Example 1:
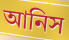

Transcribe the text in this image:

আনিস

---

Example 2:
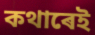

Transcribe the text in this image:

কথাৰেই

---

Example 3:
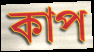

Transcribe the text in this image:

কাপ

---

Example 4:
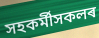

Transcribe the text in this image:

সহকৰ্মীসকলৰ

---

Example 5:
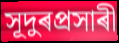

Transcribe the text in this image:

সূদুৰপ্ৰসাৰী